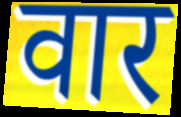
वार